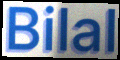
Bilal